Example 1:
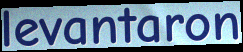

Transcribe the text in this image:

levantaron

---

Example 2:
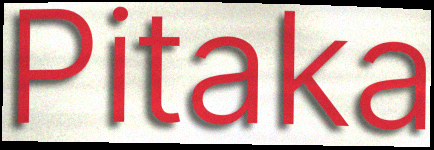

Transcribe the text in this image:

Pitaka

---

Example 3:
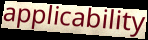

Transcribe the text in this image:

applicability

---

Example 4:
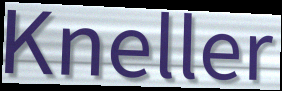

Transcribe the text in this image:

Kneller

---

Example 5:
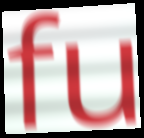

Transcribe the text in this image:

fu